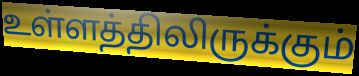
உள்ளத்திலிருக்கும்